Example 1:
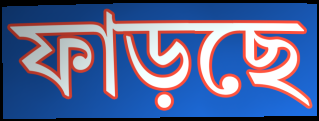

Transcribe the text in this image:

ফাড়ছে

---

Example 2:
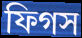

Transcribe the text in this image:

ফিগস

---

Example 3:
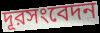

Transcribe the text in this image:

দূরসংবেদন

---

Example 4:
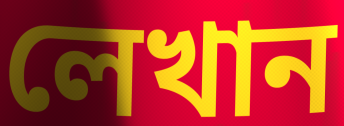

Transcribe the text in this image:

লেখান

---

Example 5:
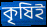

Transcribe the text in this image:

কৃষিই